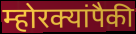
म्होरक्यांपैकी